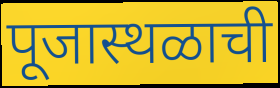
पूजास्थळाची